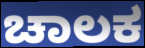
ಚಾಲಕ